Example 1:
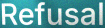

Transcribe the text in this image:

Refusal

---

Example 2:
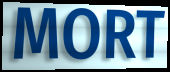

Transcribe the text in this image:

MORT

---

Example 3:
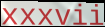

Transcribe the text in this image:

xxxvii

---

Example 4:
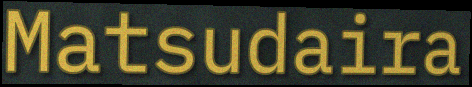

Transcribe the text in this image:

Matsudaira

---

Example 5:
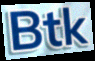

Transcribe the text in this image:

Btk